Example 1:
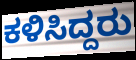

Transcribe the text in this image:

ಕಳಿಸಿದ್ದರು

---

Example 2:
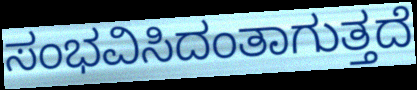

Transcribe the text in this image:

ಸಂಭವಿಸಿದಂತಾಗುತ್ತದೆ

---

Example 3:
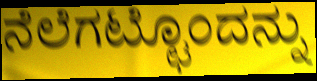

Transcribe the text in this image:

ನೆಲೆಗಟ್ಟೊಂದನ್ನು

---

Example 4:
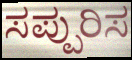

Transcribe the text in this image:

ಸಪ್ಪುರಿಸ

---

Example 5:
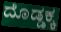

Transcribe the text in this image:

ದೊಡ್ಡಕ್ಕ